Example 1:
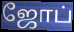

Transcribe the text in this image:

ஜோப்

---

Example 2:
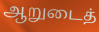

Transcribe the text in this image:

ஆறுடைத்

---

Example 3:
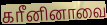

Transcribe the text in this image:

கரீனினாவை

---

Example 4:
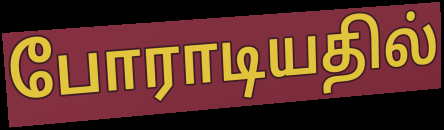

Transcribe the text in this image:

போராடியதில்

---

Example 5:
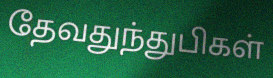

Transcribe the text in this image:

தேவதுந்துபிகள்